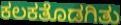
ಕಲಕತೊಡಗಿತು